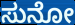
ಸುನೋ